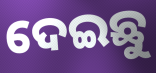
ଦେଇଛୁ